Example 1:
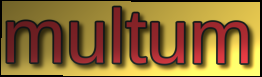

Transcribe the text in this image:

multum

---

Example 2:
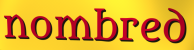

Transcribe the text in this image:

nombred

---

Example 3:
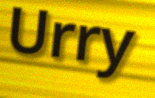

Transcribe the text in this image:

Urry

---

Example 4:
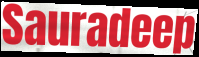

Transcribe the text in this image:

Sauradeep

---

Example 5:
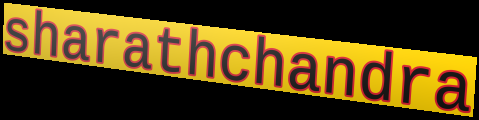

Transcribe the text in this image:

sharathchandra